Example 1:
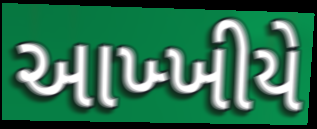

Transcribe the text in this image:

આખ્ખીયે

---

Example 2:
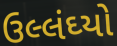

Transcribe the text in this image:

ઉલ્લંઘ્યો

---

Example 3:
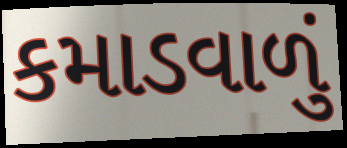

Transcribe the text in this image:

કમાડવાળું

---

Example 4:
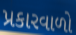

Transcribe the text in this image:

પ્રકારવાળો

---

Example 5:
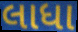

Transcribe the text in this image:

લાધા